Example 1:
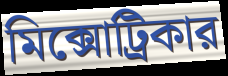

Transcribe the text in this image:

মিক্সোট্রিকার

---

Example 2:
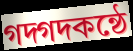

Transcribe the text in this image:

গদ্গদকন্ঠে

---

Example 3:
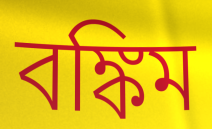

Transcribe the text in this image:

বঙ্কিম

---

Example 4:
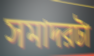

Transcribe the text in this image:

সমাদরটা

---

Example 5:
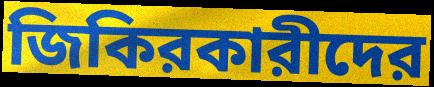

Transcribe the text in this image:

জিকিরকারীদের